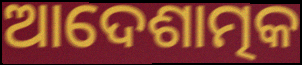
ଆଦେଶାତ୍ମକ